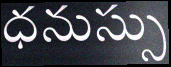
ధనుస్సు